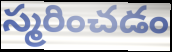
స్మరించడం